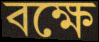
বক্ষে